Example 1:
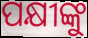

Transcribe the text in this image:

ପକ୍ଷୀଙ୍କୁ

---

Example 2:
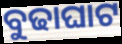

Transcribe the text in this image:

ବୁଢାଘାଟ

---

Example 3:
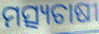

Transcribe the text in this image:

ମତ୍ସ୍ୟଚାଷୀ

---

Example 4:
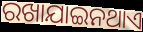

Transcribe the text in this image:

ରଖାଯାଇନଥାଏ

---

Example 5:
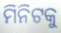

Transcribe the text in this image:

ମିନିଟକୁ